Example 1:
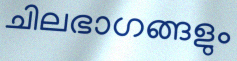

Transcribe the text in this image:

ചിലഭാഗങ്ങളും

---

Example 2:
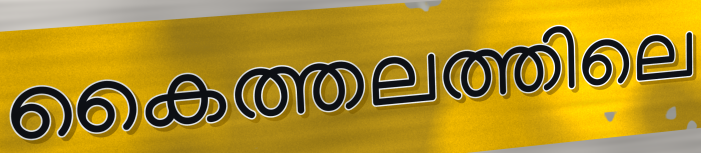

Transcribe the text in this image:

കൈത്തലത്തിലെ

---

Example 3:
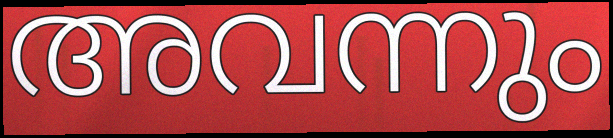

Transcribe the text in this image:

അവന്നും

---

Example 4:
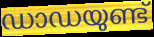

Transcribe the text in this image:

ഡാഡയുണ്ട്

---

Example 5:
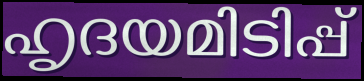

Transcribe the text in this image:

ഹൃദയമിടിപ്പ്